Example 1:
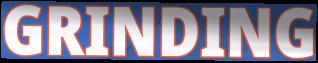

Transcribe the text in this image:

GRINDING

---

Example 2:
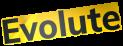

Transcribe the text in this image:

Evolute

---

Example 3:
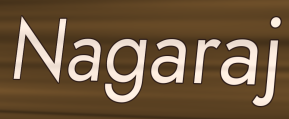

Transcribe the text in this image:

Nagaraj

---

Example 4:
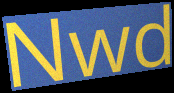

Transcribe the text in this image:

Nwd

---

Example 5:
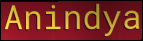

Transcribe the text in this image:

Anindya